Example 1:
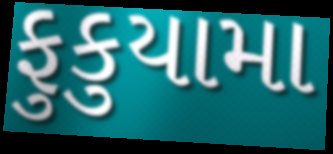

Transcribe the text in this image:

ફુકુયામા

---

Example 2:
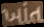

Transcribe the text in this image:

ખાંત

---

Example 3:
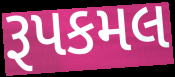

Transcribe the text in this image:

રૂપકમલ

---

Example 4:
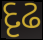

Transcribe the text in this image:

દૃઢ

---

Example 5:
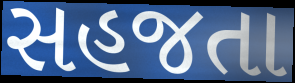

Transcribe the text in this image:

સહજતા